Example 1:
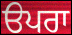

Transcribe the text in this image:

ੳਪਰਾ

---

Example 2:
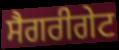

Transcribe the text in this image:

ਸੈਗਰੀਗੇਟ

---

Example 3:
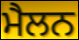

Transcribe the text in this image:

ਮੈਲਨ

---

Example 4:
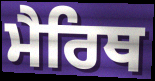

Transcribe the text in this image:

ਮੈਰਿਥ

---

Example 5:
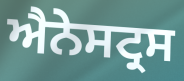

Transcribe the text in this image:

ਐਨੇਸਟ੍ਰਸ